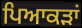
ਪਿਆਕੜਾਂ